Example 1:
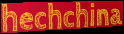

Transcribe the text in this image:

hechchina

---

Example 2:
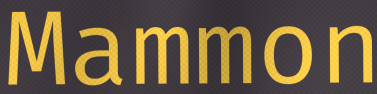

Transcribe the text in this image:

Mammon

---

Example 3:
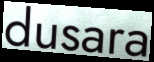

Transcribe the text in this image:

dusara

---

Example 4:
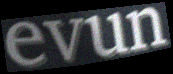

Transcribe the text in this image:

evun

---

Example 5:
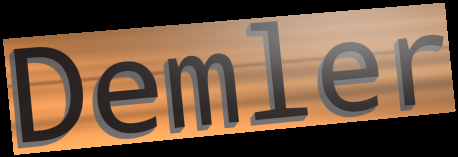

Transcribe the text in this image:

Demler